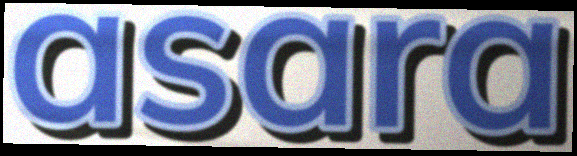
asara